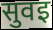
सुवइ